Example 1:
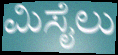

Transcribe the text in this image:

ಮಿಸೈಲು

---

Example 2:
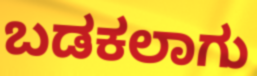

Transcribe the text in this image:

ಬಡಕಲಾಗು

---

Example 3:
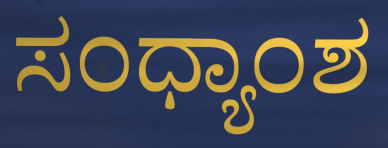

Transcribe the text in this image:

ಸಂಧ್ಯಾಂಶ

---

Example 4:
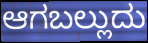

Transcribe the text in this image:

ಆಗಬಲ್ಲುದು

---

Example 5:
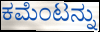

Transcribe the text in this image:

ಕಮೆಂಟನ್ನು